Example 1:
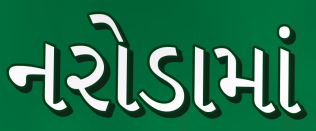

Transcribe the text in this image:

નરોડામાં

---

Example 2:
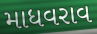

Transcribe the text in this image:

માધવરાવ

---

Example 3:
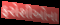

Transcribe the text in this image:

ફરોશીઓના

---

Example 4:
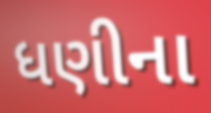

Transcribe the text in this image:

ધણીના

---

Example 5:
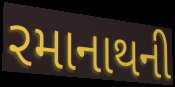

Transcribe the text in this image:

રમાનાથની